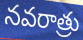
నవరాత్రు